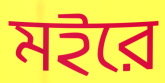
মইরে